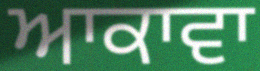
ਆਕਾਵਾ